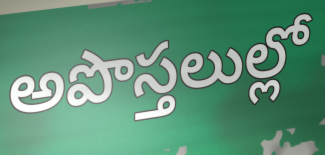
అపొస్తలుల్లో